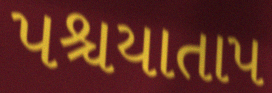
પશ્ચયાતાપ